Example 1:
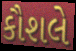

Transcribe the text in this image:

કૌશલે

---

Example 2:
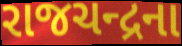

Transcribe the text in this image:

રાજચન્દ્રના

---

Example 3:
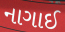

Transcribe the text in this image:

નાગાઈ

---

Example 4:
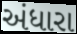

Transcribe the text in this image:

અંધારા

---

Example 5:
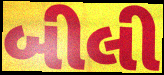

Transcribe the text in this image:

બીલી